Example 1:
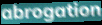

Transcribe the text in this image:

abrogation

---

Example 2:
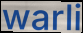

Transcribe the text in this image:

warli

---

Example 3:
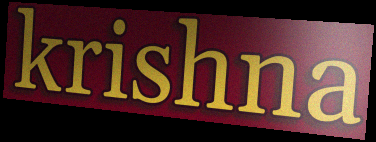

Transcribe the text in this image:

krishna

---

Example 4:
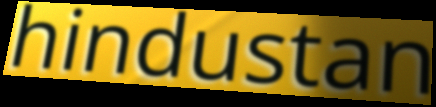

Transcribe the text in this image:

hindustan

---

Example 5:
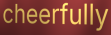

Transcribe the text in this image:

cheerfully